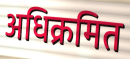
अधिक्रमित